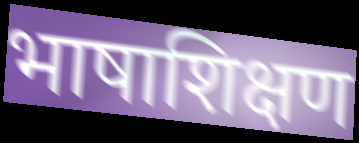
भाषाशिक्षण